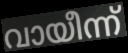
വായീന്ന്